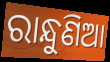
ରାନ୍ଧୁଣିଆ